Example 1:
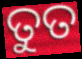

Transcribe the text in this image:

ତୁତ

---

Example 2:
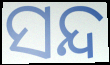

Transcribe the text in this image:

ସନ୍ଦ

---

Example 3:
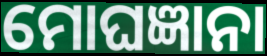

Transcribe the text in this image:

ମୋଘଜ୍ଞାନା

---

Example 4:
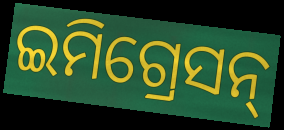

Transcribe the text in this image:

ଇମିଗ୍ରେସନ୍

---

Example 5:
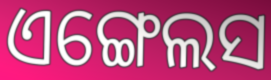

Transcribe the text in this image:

ଏଙ୍ଗେଲସ